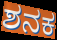
ಶನಕ